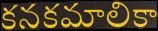
కనకమాలికా